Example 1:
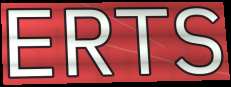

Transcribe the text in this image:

ERTS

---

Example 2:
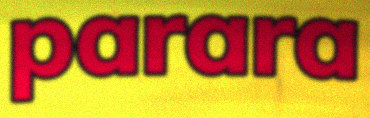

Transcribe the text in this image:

parara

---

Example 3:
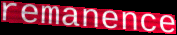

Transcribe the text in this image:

remanence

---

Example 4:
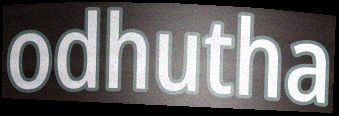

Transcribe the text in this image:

odhutha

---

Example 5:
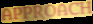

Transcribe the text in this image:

APPROACH